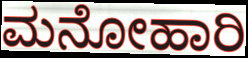
ಮನೋಹಾರಿ